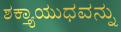
ಶಕ್ತ್ಯಾಯುಧವನ್ನು